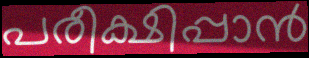
പരീക്ഷിപ്പാൻ